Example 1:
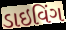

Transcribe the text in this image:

ડાઇવિંગ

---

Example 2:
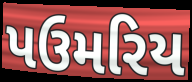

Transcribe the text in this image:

પઉમરિય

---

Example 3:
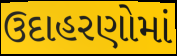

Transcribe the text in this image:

ઉદાહરણોમાં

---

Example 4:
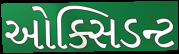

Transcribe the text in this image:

ઓક્સિડન્ટ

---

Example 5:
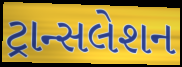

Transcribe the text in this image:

ટ્રાન્સલેશન